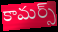
కామర్స్